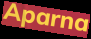
Aparna